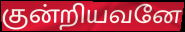
குன்றியவனே